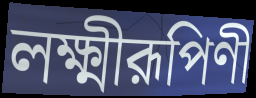
লক্ষ্মীরূপিণী